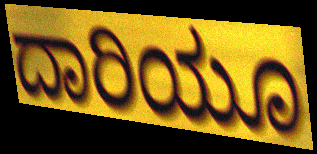
ದಾರಿಯೂ